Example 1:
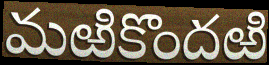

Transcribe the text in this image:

మఱికొందఱి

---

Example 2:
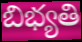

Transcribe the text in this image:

బిభ్యతి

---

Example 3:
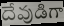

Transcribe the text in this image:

దేవుడిగా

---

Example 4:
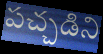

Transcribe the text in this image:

పచ్చడిని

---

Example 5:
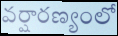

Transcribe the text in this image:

వర్షారణ్యంలో